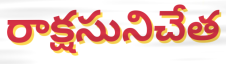
రాక్షసునిచేత